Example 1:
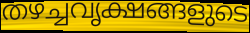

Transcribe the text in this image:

തഴച്ചവൃക്ഷങ്ങളുടെ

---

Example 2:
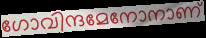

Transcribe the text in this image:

ഗോവിന്ദമേനോനാണ്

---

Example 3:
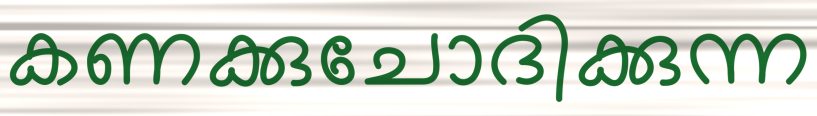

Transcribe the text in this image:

കണക്കുചോദിക്കുന്ന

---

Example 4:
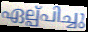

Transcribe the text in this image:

ഏല്പ്പിച്ചു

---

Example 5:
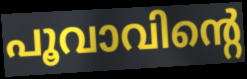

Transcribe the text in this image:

പൂവാവിന്റെ